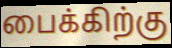
பைக்கிற்கு